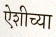
ऐशीच्या